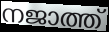
നജാത്ത്